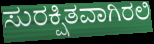
ಸುರಕ್ಷಿತವಾಗಿರಲಿ